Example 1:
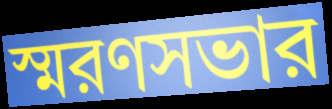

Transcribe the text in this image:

স্মরণসভার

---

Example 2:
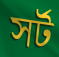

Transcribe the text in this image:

সর্ট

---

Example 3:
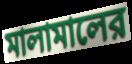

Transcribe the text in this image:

মালামালের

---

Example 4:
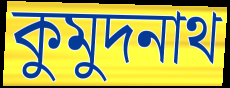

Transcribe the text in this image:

কুমুদনাথ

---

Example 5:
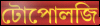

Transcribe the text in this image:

টোপোলজি